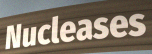
Nucleases